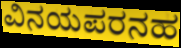
ವಿನಯಪರನಹ